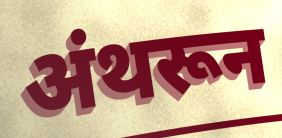
अंथरून